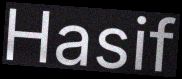
Hasif